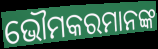
ଭୌମକରମାନଙ୍କ